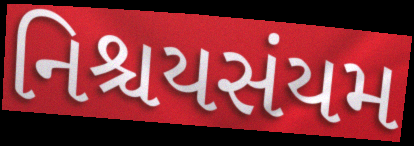
નિશ્ચયસંયમ